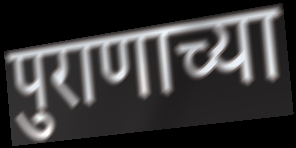
पुराणाच्या